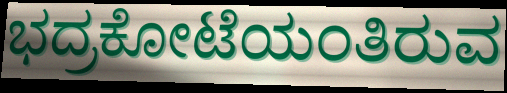
ಭದ್ರಕೋಟೆಯಂತಿರುವ